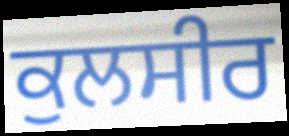
ਕੁਲਸੀਰ